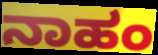
ನಾಹಂ